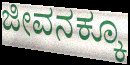
ಜೀವನಕ್ಕೂ